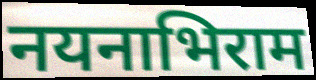
नयनाभिराम